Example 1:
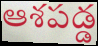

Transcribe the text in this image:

ఆశపడ్డ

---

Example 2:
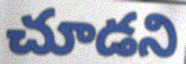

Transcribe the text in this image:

చూడని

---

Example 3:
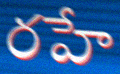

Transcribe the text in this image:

రహే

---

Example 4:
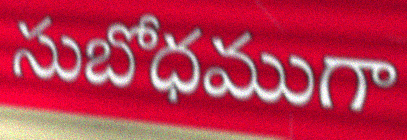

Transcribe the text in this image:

సుబోధముగా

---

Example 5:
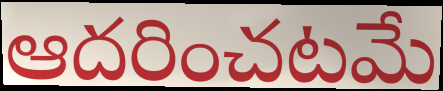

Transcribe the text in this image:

ఆదరించటమే